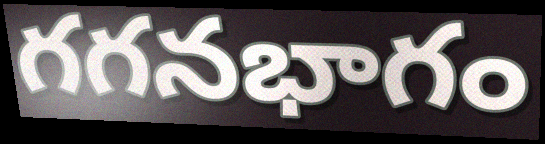
గగనభాగం